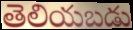
తెలియబడు